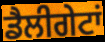
ਡੈਲੀਗੇਟਾਂ